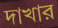
দাখার